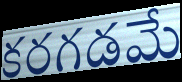
కరగడమే